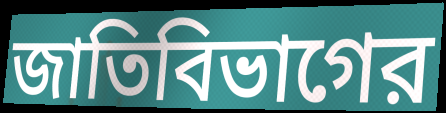
জাতিবিভাগের